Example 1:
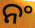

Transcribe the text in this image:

ନଂ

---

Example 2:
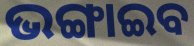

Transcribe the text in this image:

ଭଙ୍ଗାଇବ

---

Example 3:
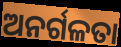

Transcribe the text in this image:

ଅନର୍ଗଳତା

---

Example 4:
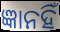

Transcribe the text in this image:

ଜ୍ଞାନହିଁ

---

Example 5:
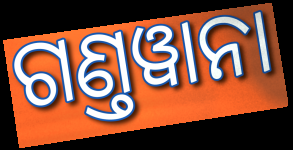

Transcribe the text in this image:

ଗଣ୍ତୱାନା